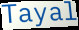
Tayal